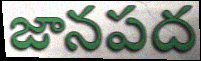
జానపద